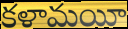
కళామయీ